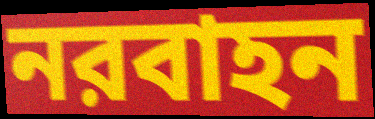
নরবাহন